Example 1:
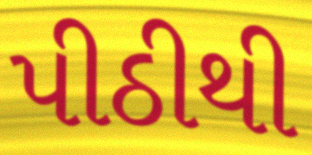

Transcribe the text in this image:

પીઠીથી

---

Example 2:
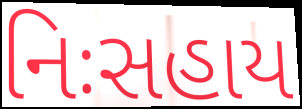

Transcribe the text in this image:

નિઃસહાય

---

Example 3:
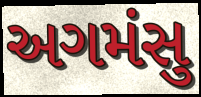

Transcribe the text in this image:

અગમંસુ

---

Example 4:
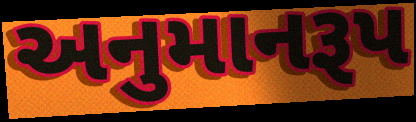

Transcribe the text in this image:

અનુમાનરૂપ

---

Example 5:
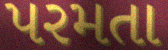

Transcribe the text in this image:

પરમતા